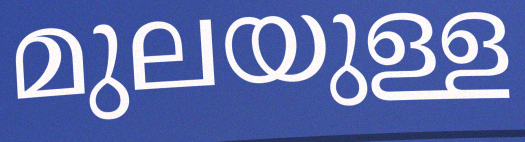
മുലയുള്ള